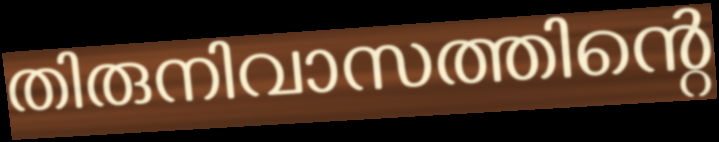
തിരുനിവാസത്തിന്റെ